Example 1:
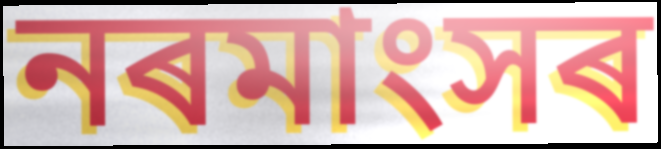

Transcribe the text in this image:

নৰমাংসৰ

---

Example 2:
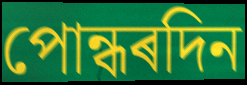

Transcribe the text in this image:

পোন্ধৰদিন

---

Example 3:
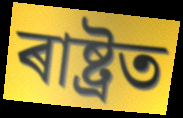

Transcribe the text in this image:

ৰাষ্ট্ৰত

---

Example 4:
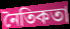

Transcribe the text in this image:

নৈতিকতা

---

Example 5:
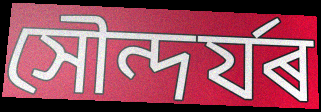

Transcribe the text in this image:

সৌন্দৰ্যৰ